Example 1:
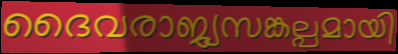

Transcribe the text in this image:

ദൈവരാജ്യസങ്കല്പമായി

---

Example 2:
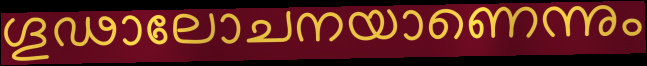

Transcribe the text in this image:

ഗൂഢാലോചനയാണെന്നും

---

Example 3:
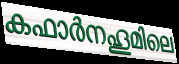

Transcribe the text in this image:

കഫാർനഹൂമിലെ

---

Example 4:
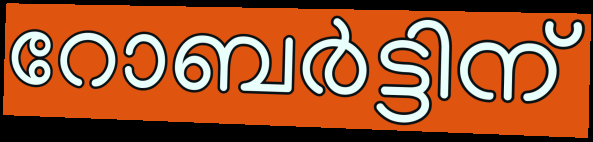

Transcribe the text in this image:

റോബർട്ടിന്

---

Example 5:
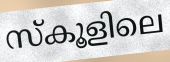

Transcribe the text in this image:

സ്കൂളിലെ